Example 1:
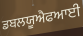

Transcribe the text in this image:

ਡਬਲਯੂਐਫਆਈ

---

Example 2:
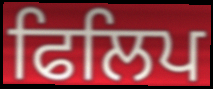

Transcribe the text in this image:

ਫਿਲਿਪ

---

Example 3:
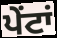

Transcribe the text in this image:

ਪੇਂਟਾਂ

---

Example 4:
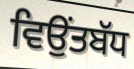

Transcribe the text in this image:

ਵਿਉਂਤਬੱਧ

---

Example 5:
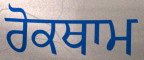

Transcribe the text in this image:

ਰੋਕਥਾਮ